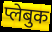
प्लेबुक